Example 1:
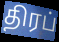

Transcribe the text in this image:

திரப்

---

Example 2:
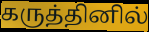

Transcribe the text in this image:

கருத்தினில்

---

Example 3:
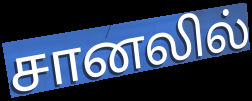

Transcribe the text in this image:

சானலில்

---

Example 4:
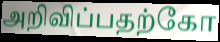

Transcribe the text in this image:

அறிவிப்பதற்கோ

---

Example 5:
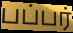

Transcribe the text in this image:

பப்பர்